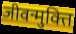
जीवन्मुक्ति